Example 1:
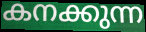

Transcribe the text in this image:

കനക്കുന്ന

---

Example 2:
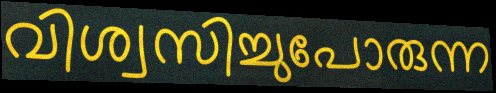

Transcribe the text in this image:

വിശ്വസിച്ചുപോരുന്ന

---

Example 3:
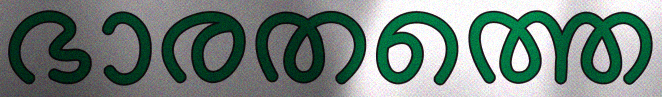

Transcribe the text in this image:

ഭാരതത്തെ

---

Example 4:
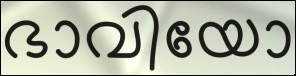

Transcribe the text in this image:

ഭാവിയോ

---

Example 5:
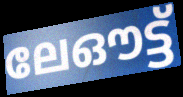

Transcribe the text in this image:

ലേഔട്ട്